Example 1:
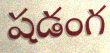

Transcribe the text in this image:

షడంగ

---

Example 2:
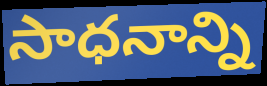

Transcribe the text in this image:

సాధనాన్ని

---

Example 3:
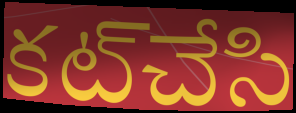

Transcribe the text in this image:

కట్‌చేసి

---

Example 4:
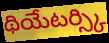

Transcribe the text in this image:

థియేటర్స్కి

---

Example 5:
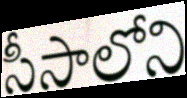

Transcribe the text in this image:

సీసాలోని